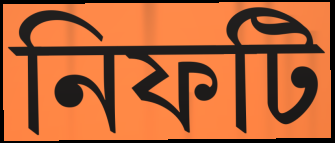
নিফটি